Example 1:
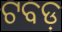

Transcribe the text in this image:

ଟବଡ଼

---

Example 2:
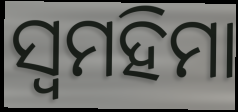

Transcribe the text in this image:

ସ୍ୱମହିମା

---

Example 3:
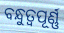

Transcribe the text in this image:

ବନ୍ଧୁତ୍ଵପୂର୍ଣ୍ଣ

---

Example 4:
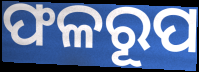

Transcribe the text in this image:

ଫଳରୂପ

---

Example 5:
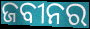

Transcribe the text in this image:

ଜବୀନର